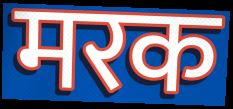
मरक